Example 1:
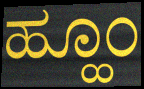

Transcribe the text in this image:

ಹ್ಹೂಂ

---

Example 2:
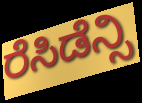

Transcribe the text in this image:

ರೆಸಿಡೆನ್ಸಿ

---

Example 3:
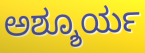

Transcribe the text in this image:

ಅಶ್ಶೂರ್ಯ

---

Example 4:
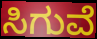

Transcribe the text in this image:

ಸಿಗುವೆ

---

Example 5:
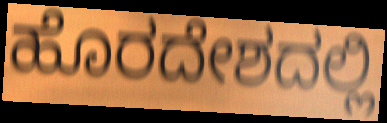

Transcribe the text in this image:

ಹೊರದೇಶದಲ್ಲಿ